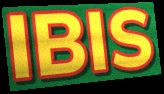
IBIS